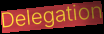
Delegation